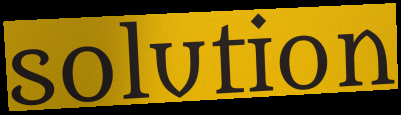
solution